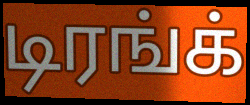
டிரங்க்